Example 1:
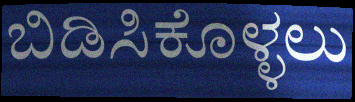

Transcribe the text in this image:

ಬಿಡಿಸಿಕೊಳ್ಳಲು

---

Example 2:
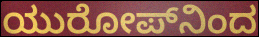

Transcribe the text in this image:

ಯುರೋಪ್‌ನಿಂದ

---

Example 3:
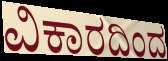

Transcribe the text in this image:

ವಿಕಾರದಿಂದ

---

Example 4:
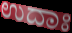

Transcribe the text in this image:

ಉದಾಃ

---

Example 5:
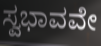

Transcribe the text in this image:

ಸ್ವಭಾವವೇ